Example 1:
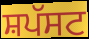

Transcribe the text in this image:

ਸ਼ਪੱਸਟ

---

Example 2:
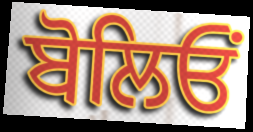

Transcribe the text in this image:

ਬੋਲਿਓਂ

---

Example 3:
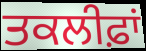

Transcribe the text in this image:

ਤਕਲੀਫ਼ਾਂ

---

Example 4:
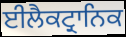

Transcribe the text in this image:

ਈਲੈਕਟ੍ਰਾਨਿਕ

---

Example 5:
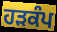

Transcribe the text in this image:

ਹਡ਼ਕੰਪ